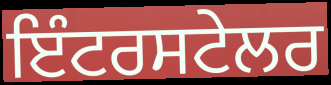
ਇੰਟਰਸਟੇਲਰ